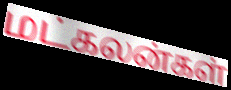
மட்கலன்கள்